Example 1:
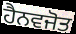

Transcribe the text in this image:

ਹੈਨਵਜੋਤ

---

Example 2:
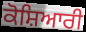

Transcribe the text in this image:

ਕੋਸ਼ਿਆਰੀ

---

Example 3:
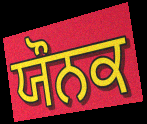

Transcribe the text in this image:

ਯੌਨਕ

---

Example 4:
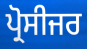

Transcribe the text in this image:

ਪ੍ਰੋਸੀਜਰ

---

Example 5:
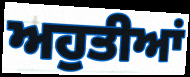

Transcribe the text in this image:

ਅਹੁਤੀਆਂ